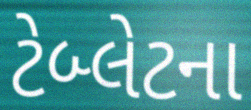
ટેબ્લેટના